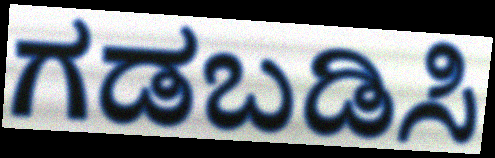
ಗಡಬಡಿಸಿ